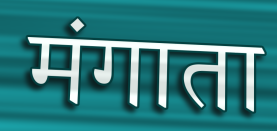
मंगाता